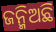
ଜନ୍ମିଅଛି